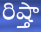
రిష్తా